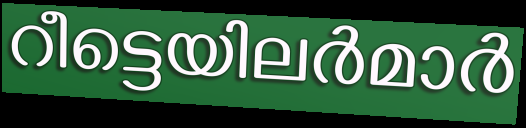
റീട്ടെയിലർമാർ